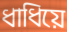
ধাধিয়ে